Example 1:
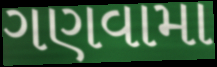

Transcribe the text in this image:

ગણવામા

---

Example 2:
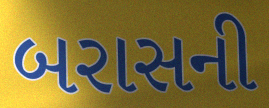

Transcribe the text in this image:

બરાસની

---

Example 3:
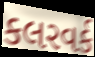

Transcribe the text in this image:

કલરવર્ક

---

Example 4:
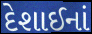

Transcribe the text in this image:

દેશાઈનાં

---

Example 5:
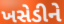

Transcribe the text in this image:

ખસેડીને